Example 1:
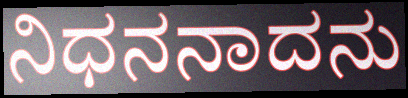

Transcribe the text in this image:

ನಿಧನನಾದನು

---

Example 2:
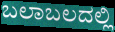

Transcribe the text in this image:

ಬಲಾಬಲದಲ್ಲಿ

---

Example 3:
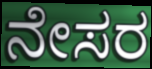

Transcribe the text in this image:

ನೇಸರ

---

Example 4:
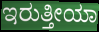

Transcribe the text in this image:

ಇರುತ್ತೀಯಾ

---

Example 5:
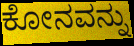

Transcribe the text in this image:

ಕೋನವನ್ನು